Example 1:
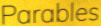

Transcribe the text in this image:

Parables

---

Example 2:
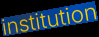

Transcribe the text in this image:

institution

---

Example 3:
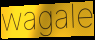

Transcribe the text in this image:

wagale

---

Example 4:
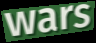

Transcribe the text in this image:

wars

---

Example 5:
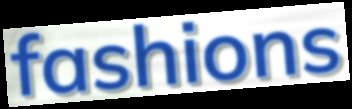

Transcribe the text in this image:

fashions